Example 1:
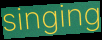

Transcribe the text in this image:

singing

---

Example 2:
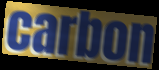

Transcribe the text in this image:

carbon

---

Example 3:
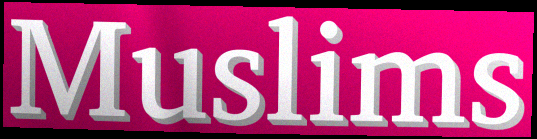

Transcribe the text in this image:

Muslims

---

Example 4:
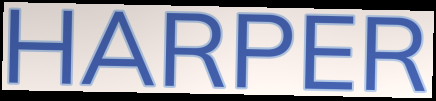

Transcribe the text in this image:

HARPER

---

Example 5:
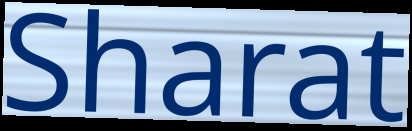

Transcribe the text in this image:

Sharat